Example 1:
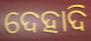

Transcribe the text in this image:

ଦେହାଦି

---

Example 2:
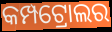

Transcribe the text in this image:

କମ୍ପଟ୍ରୋଲର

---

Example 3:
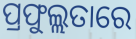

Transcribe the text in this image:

ପ୍ରଫୁଲ୍ଲତାରେ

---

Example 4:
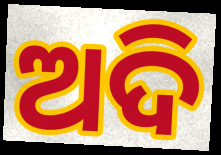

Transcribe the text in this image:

ଅଦି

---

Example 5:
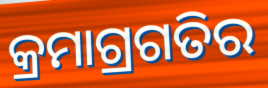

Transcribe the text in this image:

କ୍ରମାଗ୍ରଗତିର